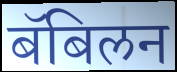
बॅबिलन